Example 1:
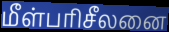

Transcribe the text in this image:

மீள்பரிசீலனை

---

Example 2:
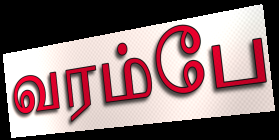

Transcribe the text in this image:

வரம்பே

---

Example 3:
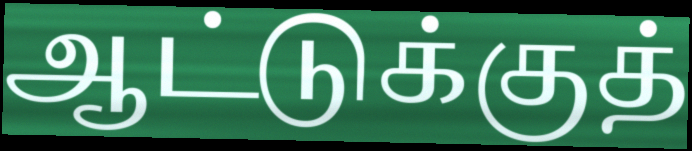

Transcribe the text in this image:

ஆட்டுக்குத்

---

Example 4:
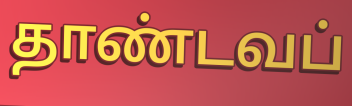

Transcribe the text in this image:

தாண்டவப்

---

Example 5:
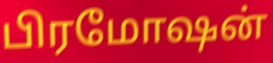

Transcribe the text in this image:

பிரமோஷன்